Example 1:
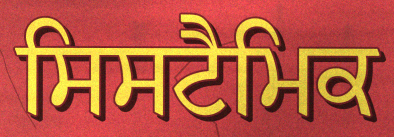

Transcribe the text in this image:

ਸਿਸਟੈਮਿਕ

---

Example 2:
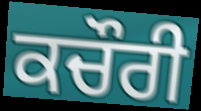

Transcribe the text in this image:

ਕਚੌਰੀ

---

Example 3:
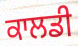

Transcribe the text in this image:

ਕਾਲਡੀ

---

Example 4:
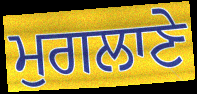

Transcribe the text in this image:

ਮੁਗਲਾਣੇ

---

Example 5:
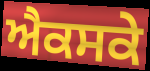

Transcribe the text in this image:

ਐਕਸਕੇ